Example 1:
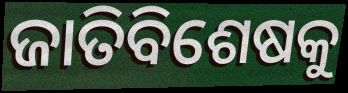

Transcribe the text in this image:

ଜାତିବିଶେଷକୁ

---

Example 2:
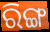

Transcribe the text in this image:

ରିଙ୍ଗ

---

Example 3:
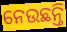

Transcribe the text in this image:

ନେଉଛନ୍ତି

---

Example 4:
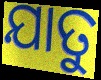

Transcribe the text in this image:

ଯାତୁ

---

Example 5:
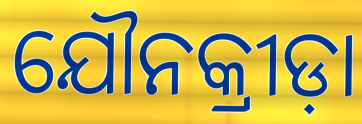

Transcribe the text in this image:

ଯୌନକ୍ରୀଡ଼ା